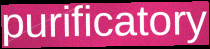
purificatory